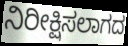
ನಿರೀಕ್ಷಿಸಲಾಗದ